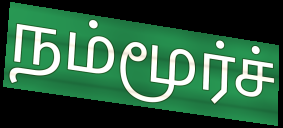
நம்மூர்ச்